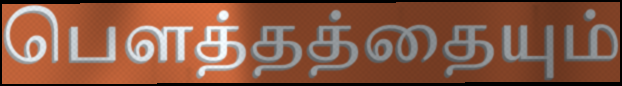
பெளத்தத்தையும்